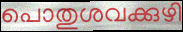
പൊതുശവക്കുഴി